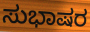
ಸುಭಾಷರ